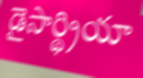
డైసార్థ్రియా